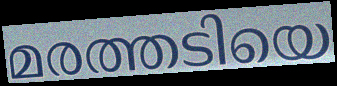
മരത്തടിയെ